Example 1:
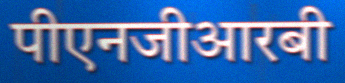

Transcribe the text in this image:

पीएनजीआरबी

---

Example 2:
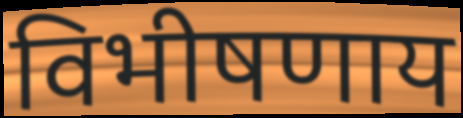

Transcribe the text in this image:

विभीषणाय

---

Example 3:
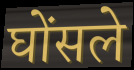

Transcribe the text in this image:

घोंसले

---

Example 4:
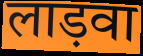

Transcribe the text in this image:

लाड़वा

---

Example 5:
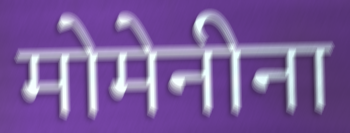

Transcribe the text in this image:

मोमेनीना